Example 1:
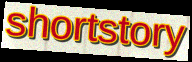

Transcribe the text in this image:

shortstory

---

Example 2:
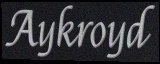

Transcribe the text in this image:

Aykroyd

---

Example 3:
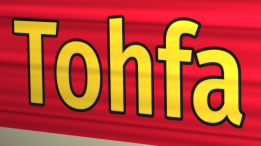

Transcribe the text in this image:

Tohfa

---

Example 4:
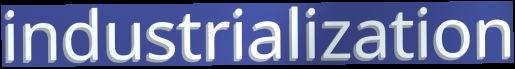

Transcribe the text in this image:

industrialization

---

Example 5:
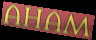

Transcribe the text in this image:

AHAM